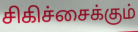
சிகிச்சைக்கும்